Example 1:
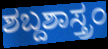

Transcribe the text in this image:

ಶಬ್ದಶಾಸ್ತ್ರಂ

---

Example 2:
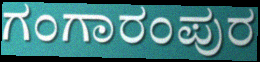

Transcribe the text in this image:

ಗಂಗಾರಂಪುರ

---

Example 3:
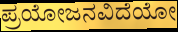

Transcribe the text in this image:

ಪ್ರಯೋಜನವಿದೆಯೋ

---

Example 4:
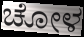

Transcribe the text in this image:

ಚೋಳ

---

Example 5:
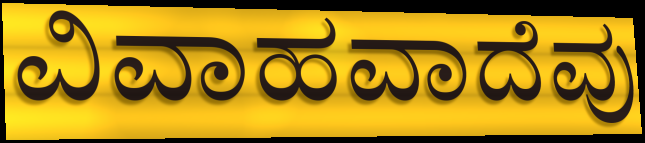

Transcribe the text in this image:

ವಿವಾಹವಾದೆವು